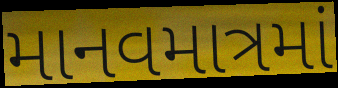
માનવમાત્રમાં